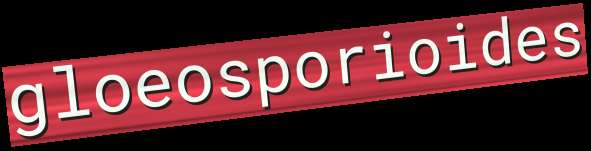
gloeosporioides